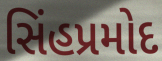
સિંહપ્રમોદ